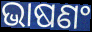
ଭାଷଣଂ